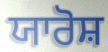
ਯਾਰੋਸ਼